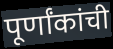
पूर्णांकांची